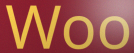
Woo